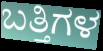
ಬತ್ತಿಗಳ